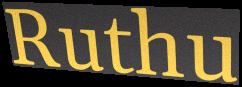
Ruthu